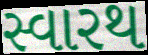
સ્વારથ